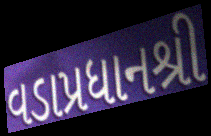
વડાપ્રધાનશ્રી